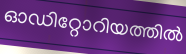
ഓഡിറ്റോറിയത്തിൽ